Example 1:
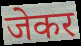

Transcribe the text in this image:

जेकर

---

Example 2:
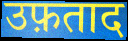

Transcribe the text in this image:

उफ़ताद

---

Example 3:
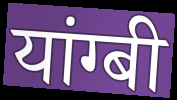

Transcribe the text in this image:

यांग्बी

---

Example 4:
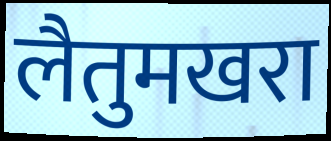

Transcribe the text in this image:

लैतुमखरा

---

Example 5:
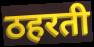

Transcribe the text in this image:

ठहरती